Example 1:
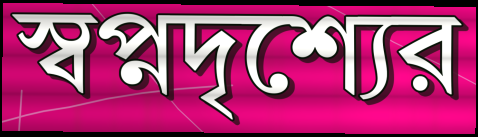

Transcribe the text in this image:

স্বপ্নদৃশ্যের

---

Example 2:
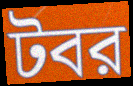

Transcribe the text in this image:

টবর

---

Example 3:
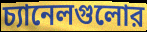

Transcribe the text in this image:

চ্যানেলগুলোর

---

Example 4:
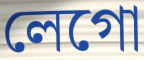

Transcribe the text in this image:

লেগো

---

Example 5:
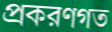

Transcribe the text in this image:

প্রকরণগত